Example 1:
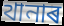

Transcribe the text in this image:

থানাৰ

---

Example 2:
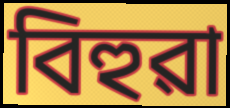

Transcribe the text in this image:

বিহুৱা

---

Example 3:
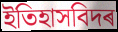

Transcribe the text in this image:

ইতিহাসবিদৰ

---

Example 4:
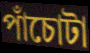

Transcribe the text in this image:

পাঁচোটা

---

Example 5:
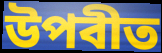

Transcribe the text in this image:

উপবীত